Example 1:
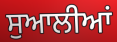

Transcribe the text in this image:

ਸੁਆਲੀਆਂ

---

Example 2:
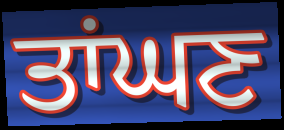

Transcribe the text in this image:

ਤਾਂਘਣ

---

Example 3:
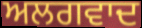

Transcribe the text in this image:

ਅਲਗਵਾਦ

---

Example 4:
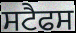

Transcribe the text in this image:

ਸਟੈਫਸ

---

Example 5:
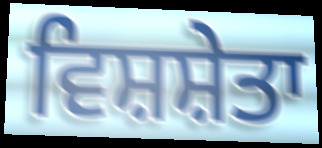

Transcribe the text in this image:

ਵਿਸ਼ਸ਼ੇਤਾ